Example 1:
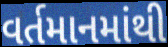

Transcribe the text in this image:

વર્તમાનમાંથી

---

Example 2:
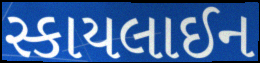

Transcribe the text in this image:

સ્કાયલાઈન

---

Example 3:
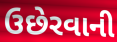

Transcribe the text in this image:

ઉછેરવાની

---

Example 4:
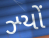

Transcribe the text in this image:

ઝ્યોં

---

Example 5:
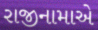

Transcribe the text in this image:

રાજીનામાએ